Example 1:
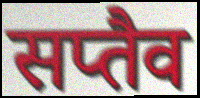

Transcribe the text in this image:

सप्तैव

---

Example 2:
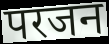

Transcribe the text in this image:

परजन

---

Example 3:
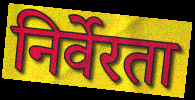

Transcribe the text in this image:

निर्वेरता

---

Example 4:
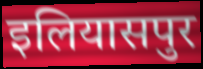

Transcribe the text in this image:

इलियासपुर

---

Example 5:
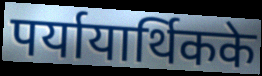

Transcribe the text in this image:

पर्यायार्थिकके